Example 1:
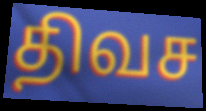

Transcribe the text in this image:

திவச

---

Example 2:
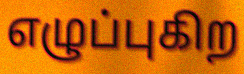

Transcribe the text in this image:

எழுப்புகிற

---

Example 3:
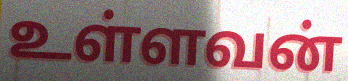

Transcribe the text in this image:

உள்ளவன்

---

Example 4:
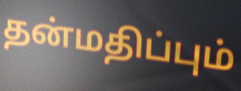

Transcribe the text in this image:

தன்மதிப்பும்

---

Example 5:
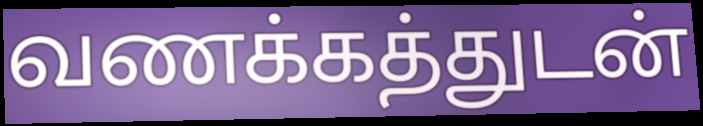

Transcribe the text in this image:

வணக்கத்துடன்